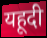
यहूदी